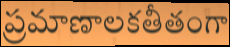
ప్రమాణాలకతీతంగా